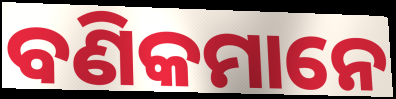
ବଣିକମାନେ